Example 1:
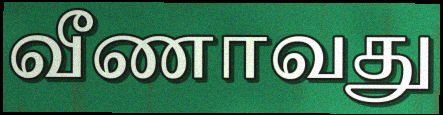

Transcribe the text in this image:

வீணாவது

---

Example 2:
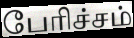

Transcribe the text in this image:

பேரிச்சம்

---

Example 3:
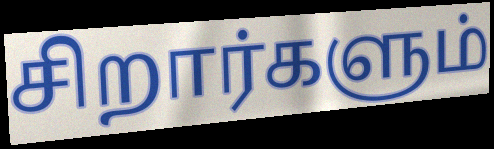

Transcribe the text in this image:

சிறார்களும்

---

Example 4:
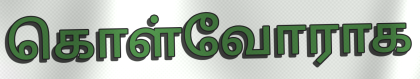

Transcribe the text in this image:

கொள்வோராக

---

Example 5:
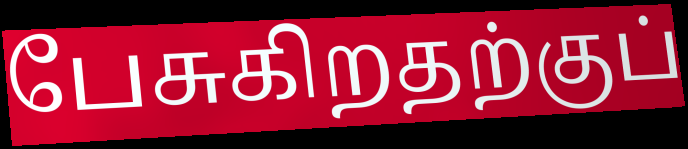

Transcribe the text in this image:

பேசுகிறதற்குப்